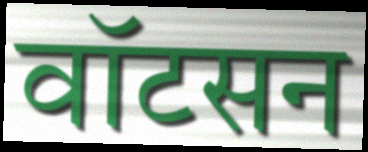
वॉटसन